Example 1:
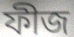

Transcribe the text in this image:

ফীজ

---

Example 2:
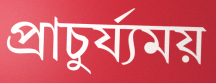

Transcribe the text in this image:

প্ৰাচুৰ্য্যময়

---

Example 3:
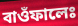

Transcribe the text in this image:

বাওঁফালেঃ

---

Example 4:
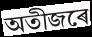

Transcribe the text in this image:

অতীজৰে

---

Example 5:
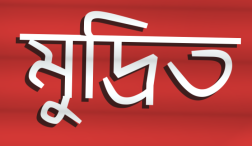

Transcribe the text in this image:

মুদ্ৰিত